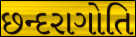
છન્દરાગોતિ